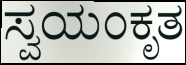
ಸ್ವಯಂಕೃತ